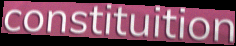
constituition